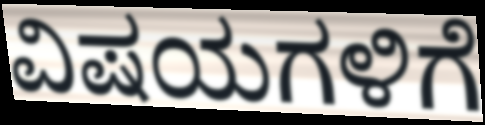
ವಿಷಯಗಳಿಗೆ